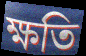
ক্ষতি